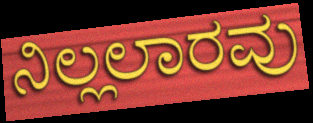
ನಿಲ್ಲಲಾರವು